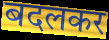
बदलकर